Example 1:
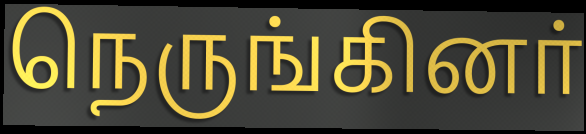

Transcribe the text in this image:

நெருங்கினர்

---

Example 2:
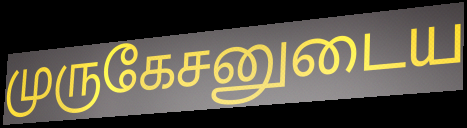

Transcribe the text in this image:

முருகேசனுடைய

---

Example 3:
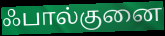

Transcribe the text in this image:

ஃபால்குனை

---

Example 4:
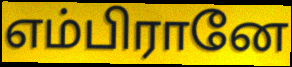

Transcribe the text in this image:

எம்பிரானே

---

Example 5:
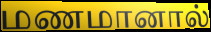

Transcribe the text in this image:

மணமானால்